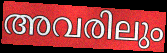
അവരിലും